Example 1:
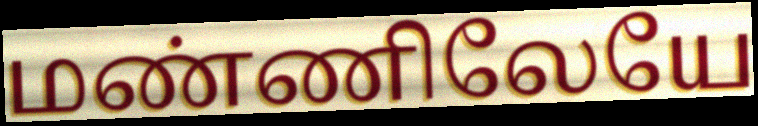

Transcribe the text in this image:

மண்ணிலேயே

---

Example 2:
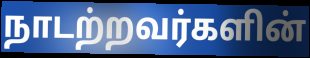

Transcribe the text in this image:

நாடற்றவர்களின்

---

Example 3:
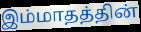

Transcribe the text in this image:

இம்மாதத்தின்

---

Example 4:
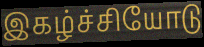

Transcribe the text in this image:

இகழ்ச்சியோடு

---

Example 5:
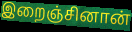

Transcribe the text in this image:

இறைஞ்சினான்